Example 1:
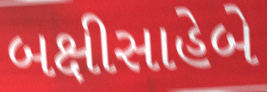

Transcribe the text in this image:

બક્ષીસાહેબે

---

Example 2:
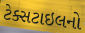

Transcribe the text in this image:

ટેક્સટાઇલનો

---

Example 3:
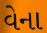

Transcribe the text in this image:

વેના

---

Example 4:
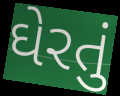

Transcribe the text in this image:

ઘેરતું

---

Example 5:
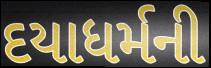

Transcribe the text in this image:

દયાધર્મની